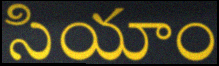
సియాం